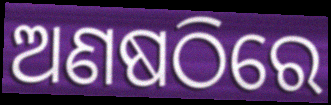
ଅଣଷଠିରେ